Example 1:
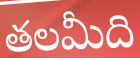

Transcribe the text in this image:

తలమీది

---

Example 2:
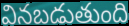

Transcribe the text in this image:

వినబడుతుంది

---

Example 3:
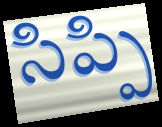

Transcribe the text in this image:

సిప్పి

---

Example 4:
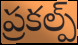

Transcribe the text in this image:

ప్రకల్ప్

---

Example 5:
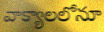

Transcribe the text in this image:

వాక్యాలలోనూ